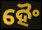
ହୈଂ